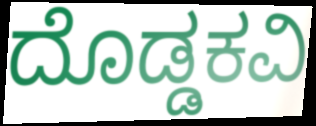
ದೊಡ್ಡಕವಿ